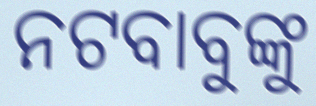
ନଟବାବୁଙ୍କୁ